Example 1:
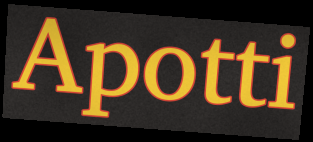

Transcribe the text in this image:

Apotti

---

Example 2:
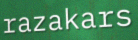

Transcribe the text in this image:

razakars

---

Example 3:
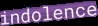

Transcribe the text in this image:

indolence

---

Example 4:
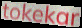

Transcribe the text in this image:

tokekar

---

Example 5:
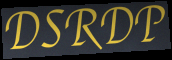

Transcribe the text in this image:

DSRDP